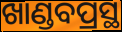
ଖାଣ୍ଡବପ୍ରସ୍ଥ